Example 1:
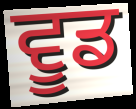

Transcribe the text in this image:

ਵੂਡ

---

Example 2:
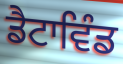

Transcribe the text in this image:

ਡੈਟਾਵਿੰਡ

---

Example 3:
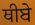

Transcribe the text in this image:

ਥੀਬੇ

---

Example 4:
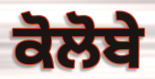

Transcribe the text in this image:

ਕੋਲੋਬੇ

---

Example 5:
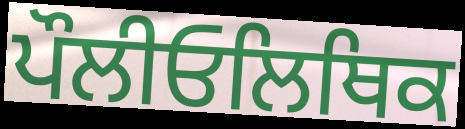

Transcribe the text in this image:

ਪੌਲੀਓਲਿਥਿਕ